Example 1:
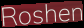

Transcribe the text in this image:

Roshen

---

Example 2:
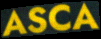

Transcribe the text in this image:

ASCA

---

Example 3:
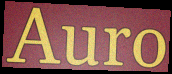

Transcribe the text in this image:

Auro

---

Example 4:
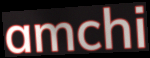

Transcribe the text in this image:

amchi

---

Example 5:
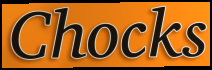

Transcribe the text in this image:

Chocks